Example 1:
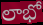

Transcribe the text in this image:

లాభో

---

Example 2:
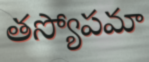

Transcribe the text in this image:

తస్యోపమా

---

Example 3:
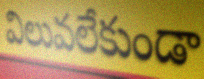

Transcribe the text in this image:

విలువలేకుండా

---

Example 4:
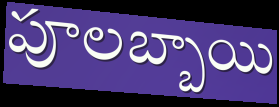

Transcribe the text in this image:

పూలబ్బాయి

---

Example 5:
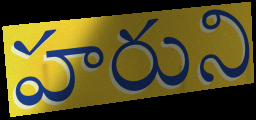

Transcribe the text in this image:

హరుని